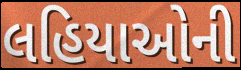
લહિયાઓની